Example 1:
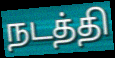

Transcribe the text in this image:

நடத்தி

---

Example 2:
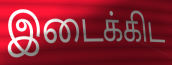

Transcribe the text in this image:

இடைக்கிட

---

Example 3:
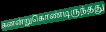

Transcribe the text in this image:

கனன்றுகொண்டிருந்தது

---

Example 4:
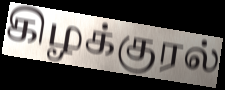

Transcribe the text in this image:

கிழக்குரல்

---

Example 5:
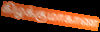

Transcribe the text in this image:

கிழக்குமாகாண